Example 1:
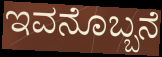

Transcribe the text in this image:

ಇವನೊಬ್ಬನೆ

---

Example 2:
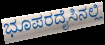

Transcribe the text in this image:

ಭೂಪರದೈಸಿನಲ್ಲಿ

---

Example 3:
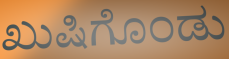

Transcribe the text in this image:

ಖುಷಿಗೊಂಡು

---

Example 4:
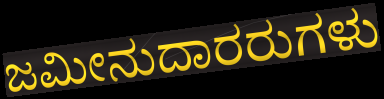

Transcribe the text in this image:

ಜಮೀನುದಾರರುಗಳು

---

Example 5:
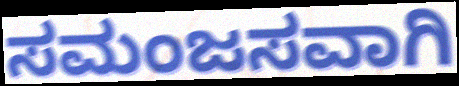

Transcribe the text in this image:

ಸಮಂಜಸವಾಗಿ